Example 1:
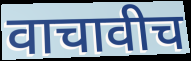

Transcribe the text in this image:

वाचावीच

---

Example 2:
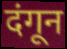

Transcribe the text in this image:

दंगून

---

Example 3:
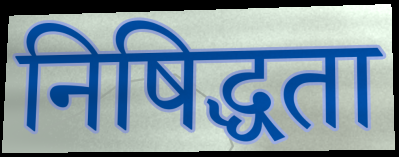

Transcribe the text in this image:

निषिद्धता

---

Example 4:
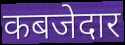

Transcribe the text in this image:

कबजेदार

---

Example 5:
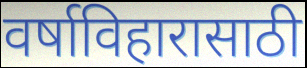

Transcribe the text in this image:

वर्षाविहारासाठी